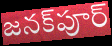
జనక్‌పూర్